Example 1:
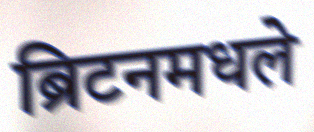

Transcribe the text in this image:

ब्रिटनमधले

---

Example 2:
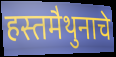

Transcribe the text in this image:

हस्तमैथुनाचे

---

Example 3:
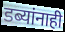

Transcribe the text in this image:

डब्यांनाही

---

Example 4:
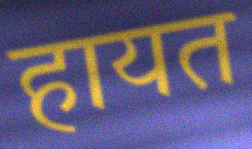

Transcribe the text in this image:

हायत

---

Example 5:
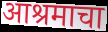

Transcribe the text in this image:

आश्रमाचा